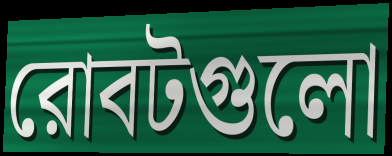
রোবটগুলো